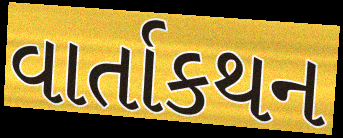
વાર્તાકથન